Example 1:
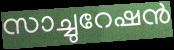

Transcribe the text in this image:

സാച്ചുറേഷൻ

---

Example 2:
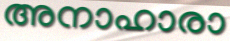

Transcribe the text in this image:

അനാഹാരാ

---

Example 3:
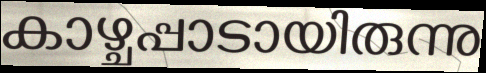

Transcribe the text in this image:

കാഴ്ചപ്പാടായിരുന്നു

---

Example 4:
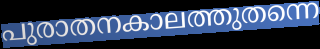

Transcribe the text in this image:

പുരാതനകാലത്തുതന്നെ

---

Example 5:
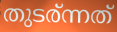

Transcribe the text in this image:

തുടര്ന്നത്